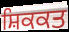
ਸ਼ਿਕਕਤ